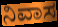
ನಿವಾಸ